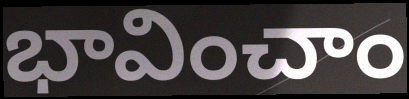
భావించాం